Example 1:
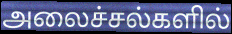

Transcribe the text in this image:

அலைச்சல்களில்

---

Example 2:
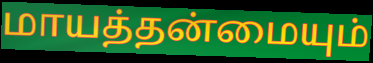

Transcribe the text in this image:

மாயத்தன்மையும்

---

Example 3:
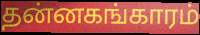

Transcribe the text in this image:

தன்னகங்காரம்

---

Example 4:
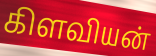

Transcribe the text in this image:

கிளவியன்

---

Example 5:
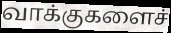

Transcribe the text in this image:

வாக்குகளைச்